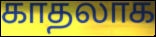
காதலாக